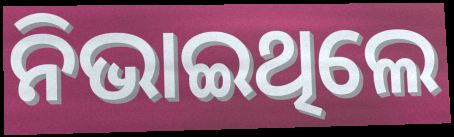
ନିଭାଇଥିଲେ